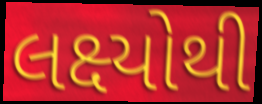
લક્ષ્યોથી